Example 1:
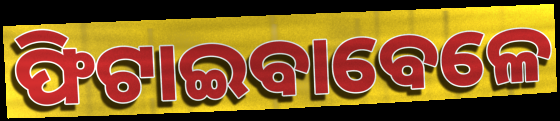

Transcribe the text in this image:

ଫିଟାଇବାବେଳେ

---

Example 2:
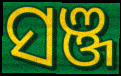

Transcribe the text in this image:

ସଞ୍ଜ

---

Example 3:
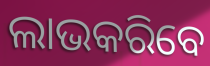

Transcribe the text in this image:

ଲାଭକରିବେ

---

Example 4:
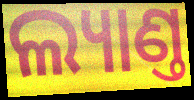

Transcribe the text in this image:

ଲ୍ୟାଣ୍ତ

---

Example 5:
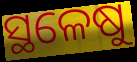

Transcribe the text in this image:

ସ୍ଥଳେଷୁ